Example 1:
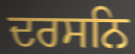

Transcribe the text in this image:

ਦਰਸਨਿ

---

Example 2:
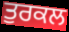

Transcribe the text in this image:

ਤੁਰਕਲ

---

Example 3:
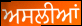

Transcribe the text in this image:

ਅਸਲੀਆਂ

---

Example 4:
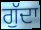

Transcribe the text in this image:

ਗੁੱਦਾ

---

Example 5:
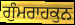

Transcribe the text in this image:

ਗੁੰਮਰਾਹਕੁਨ